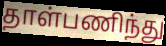
தாள்பணிந்து